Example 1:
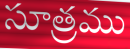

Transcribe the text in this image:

సూత్రము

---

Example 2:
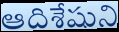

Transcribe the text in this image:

ఆదిశేషుని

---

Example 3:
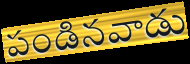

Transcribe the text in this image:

పండినవాడు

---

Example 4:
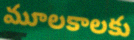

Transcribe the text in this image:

మూలకాలకు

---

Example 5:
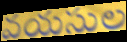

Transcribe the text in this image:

వయసుల